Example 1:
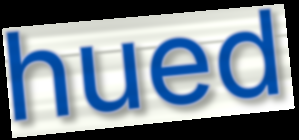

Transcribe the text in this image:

hued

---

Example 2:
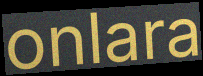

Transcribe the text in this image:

onlara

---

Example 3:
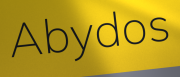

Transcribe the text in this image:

Abydos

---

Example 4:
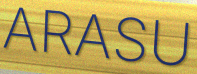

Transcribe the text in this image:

ARASU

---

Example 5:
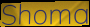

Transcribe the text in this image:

Shoma